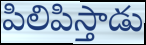
పిలిపిస్తాడు